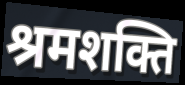
श्रमशक्ति